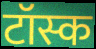
टॉस्‍क